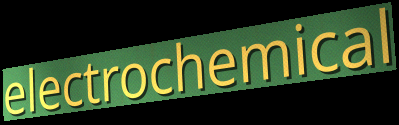
electrochemical